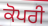
ਕੋਪਰੀ